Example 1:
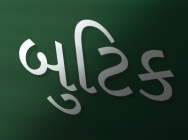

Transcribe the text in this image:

બુટિક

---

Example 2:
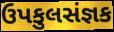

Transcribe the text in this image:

ઉપકુલસંજ્ઞક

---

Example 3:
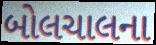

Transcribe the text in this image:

બોલચાલના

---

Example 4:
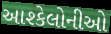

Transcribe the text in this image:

આશ્કેલોનીઓ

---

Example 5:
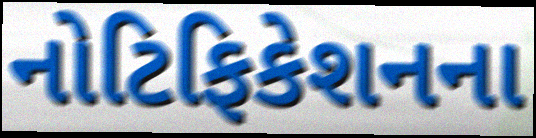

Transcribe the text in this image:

નોટિફિકેશનના